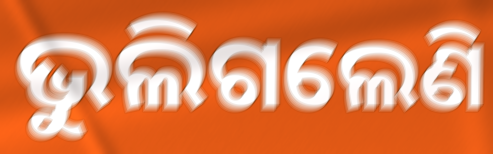
ଭୁଲିଗଲେଣି